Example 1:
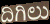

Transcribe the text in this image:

ದಿಗಿಲು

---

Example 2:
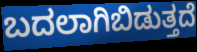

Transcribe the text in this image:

ಬದಲಾಗಿಬಿಡುತ್ತದೆ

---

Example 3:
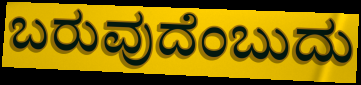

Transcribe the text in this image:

ಬರುವುದೆಂಬುದು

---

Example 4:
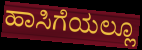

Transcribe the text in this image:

ಹಾಸಿಗೆಯಲ್ಲೂ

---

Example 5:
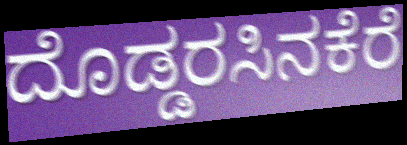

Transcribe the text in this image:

ದೊಡ್ಡರಸಿನಕೆರೆ